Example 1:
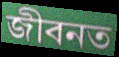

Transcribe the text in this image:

জীবনত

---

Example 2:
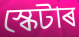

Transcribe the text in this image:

স্কেটাৰ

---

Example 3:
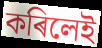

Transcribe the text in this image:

কৰিলেই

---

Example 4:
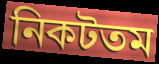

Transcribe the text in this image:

নিকটতম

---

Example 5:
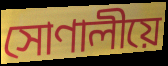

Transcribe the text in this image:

সোণালীয়ে